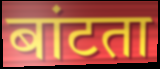
बांटता